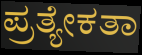
ಪ್ರತ್ಯೇಕತಾ